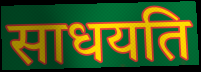
साधयति